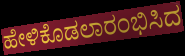
ಹೇಳಿಕೊಡಲಾರಂಭಿಸಿದ